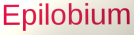
Epilobium